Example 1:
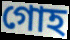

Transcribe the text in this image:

গোহ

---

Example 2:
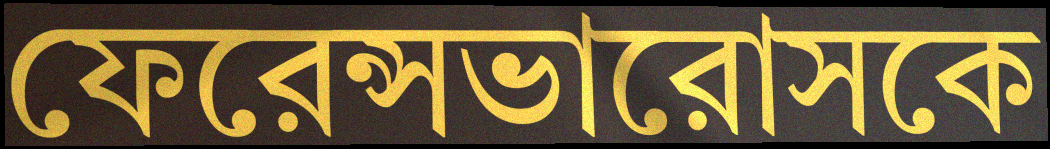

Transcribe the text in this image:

ফেরেন্সভারোসকে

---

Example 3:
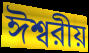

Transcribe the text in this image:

ঈশ্বরীয়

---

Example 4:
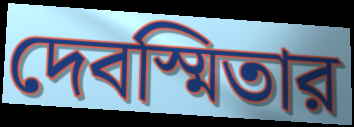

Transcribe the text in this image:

দেবস্মিতার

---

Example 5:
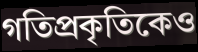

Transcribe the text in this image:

গতিপ্রকৃতিকেও